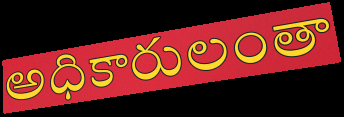
అధికారులంతా